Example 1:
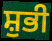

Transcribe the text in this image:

ਸ਼ੁਭੀ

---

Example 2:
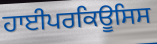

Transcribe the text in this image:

ਹਾਈਪਰਕਿਊਸਿਸ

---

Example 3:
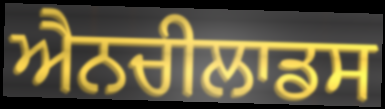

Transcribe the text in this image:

ਐਨਚੀਲਾਡਸ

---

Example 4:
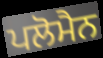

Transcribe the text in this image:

ਪਲੋਮੈਨ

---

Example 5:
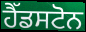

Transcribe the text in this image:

ਹੈੱਡਸਟੋਨ